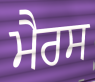
ਮੈਰਸ